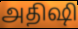
அதிஷி